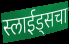
स्लाईड्सचा